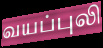
வயப்புலி